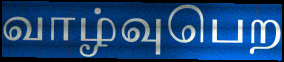
வாழ்வுபெற